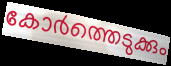
കോർത്തെടുക്കും